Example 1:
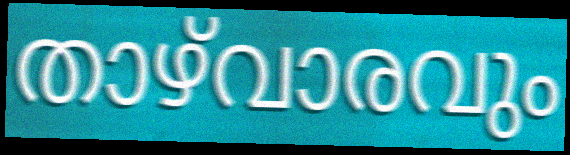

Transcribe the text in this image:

താഴ്‌വാരവും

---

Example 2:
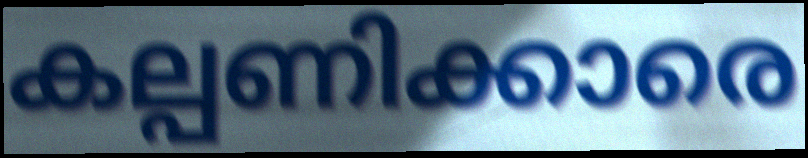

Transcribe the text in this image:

കല്പണിക്കാരെ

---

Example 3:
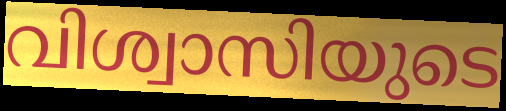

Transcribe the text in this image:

വിശ്വാസിയുടെ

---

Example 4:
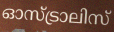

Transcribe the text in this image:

ഓസ്ട്രാലിസ്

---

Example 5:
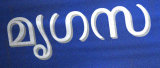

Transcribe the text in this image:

മൃഗസ